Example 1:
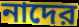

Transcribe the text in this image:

নাদের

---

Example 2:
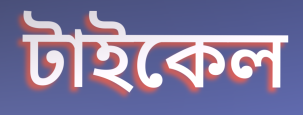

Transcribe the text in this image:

টাইকেল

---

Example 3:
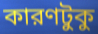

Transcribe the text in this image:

কারণটুকু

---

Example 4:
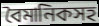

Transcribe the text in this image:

বৈমানিকসহ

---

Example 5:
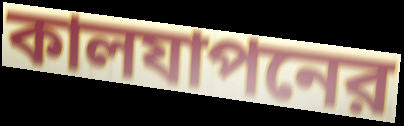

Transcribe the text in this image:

কালযাপনের